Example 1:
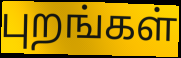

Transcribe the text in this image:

புறங்கள்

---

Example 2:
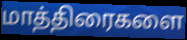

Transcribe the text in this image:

மாத்திரைகளை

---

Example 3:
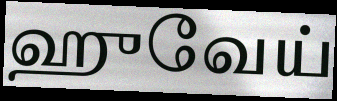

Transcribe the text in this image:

ஹுவேய்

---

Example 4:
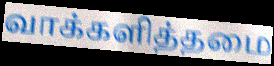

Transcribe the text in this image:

வாக்களித்தமை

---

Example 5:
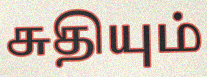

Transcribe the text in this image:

சுதியும்